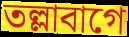
তল্লাবাগে